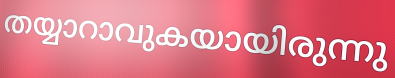
തയ്യാറാവുകയായിരുന്നു